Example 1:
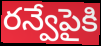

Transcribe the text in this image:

రన్వేపైకి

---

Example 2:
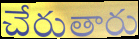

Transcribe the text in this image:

చేరుతారు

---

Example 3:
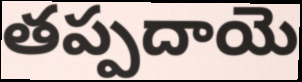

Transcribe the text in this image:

తప్పదాయె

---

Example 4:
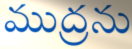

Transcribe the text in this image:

ముద్రను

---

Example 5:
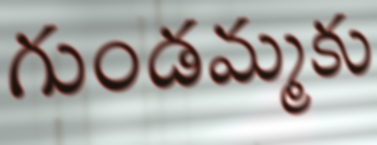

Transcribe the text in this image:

గుండమ్మకు